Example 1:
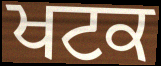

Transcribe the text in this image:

ਖਟਕ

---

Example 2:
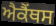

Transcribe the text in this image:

ਐਕੈਂਥਸ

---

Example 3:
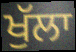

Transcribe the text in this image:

ਖੁੱਲਾ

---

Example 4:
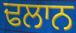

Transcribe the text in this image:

ਢਲਾਨ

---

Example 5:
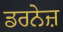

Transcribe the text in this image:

ਡਰਨੇਜ਼